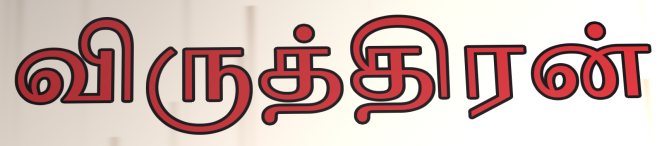
விருத்திரன்